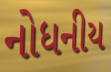
નોધનીય